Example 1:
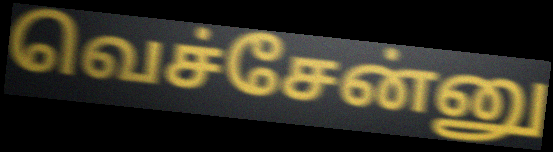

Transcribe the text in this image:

வெச்சேன்னு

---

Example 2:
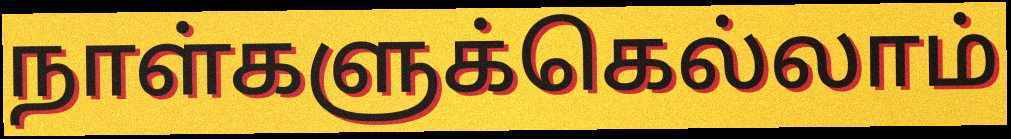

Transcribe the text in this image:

நாள்களுக்கெல்லாம்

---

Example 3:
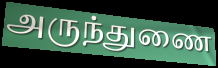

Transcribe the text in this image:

அருந்துணை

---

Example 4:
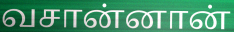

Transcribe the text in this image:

வசான்னான்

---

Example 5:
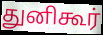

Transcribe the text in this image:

துனிகூர்